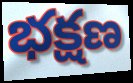
భక్షణ